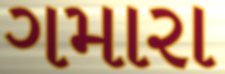
ગમારા